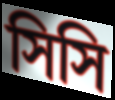
সিসি